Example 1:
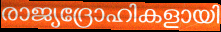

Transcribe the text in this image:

രാജ്യദ്രോഹികളായി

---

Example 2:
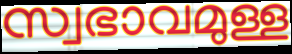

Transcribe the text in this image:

സ്വഭാവമുള്ള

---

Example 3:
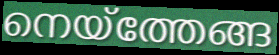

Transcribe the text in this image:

നെയ്ത്തേങ്ങ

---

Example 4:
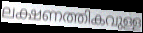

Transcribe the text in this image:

ലക്ഷണത്തികവുള്ള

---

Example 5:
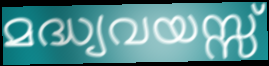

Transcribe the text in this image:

മദ്ധ്യവയസ്സ്